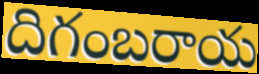
దిగంబరాయ